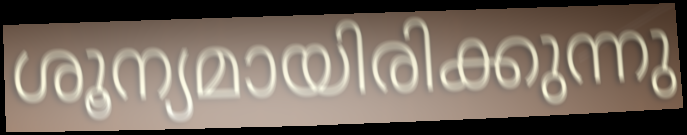
ശൂന്യമായിരിക്കുന്നു